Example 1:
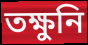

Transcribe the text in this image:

তক্ষুনি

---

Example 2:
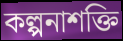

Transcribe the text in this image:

কল্পনাশক্তি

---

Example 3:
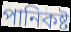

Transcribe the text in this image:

পানিকষ্ট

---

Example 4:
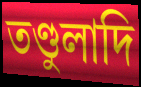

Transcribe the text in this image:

তণ্ডুলাদি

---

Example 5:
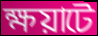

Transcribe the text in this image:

ক্ষয়াটে